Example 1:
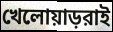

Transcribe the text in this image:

খেলোয়াড়রাই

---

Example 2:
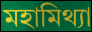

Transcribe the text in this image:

মহামিথ্যা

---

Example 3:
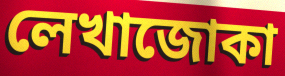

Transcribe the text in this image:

লেখাজোকা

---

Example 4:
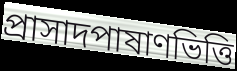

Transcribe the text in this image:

প্রাসাদপাষাণভিত্তি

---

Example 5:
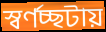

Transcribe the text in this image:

স্বর্ণচ্ছটায়